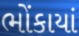
ભોંકાયાં